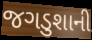
જગડુશાની